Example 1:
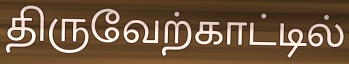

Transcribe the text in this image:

திருவேற்காட்டில்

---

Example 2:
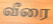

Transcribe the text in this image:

வீரை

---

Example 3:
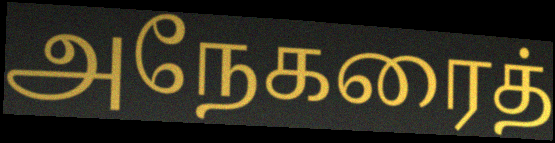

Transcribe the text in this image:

அநேகரைத்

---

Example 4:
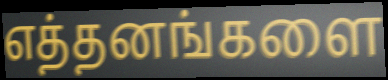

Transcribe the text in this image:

எத்தனங்களை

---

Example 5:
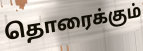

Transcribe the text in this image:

தொரைக்கும்